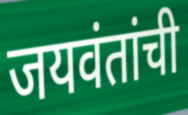
जयवंतांची